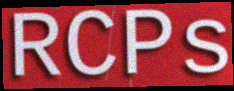
RCPs